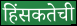
हिंसकतेची